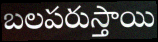
బలపరుస్తాయి